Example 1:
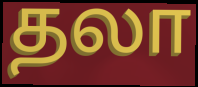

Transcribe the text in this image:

தலா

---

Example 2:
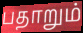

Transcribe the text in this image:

பதாறும்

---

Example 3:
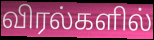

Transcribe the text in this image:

விரல்களில்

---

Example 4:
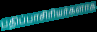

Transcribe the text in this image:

பதிப்பாசிரியர்களாக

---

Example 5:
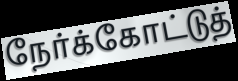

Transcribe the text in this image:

நேர்க்கோட்டுத்